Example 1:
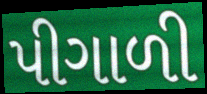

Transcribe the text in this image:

પીગાળી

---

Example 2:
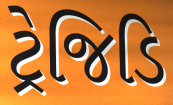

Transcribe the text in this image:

ટ્રેજિડિ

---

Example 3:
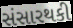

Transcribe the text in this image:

સંસારથકી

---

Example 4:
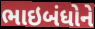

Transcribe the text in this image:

ભાઇબંધોને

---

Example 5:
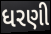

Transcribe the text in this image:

ધરણી